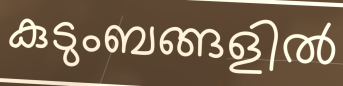
കുടുംബങ്ങളിൽ